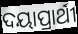
ଦୟାପ୍ରାର୍ଥୀ